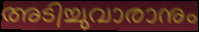
അടിച്ചുവാരാനും